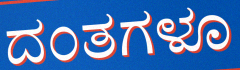
ದಂತಗಳೂ